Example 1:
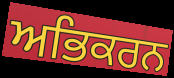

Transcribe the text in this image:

ਅਭਿਕਰਨ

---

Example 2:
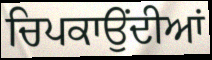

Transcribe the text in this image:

ਚਿਪਕਾਉਂਦੀਆਂ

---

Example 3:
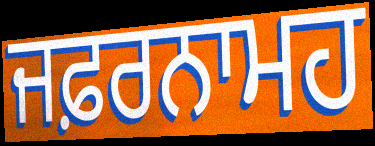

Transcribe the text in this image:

ਜਫ਼ਰਨਾਮਹ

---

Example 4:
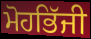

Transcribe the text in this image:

ਮੋਹਭਿੱਜੀ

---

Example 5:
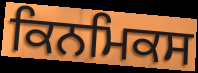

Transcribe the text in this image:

ਕਿਨਮਿਕਸ